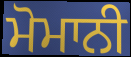
ਮੋਮਾਨੀ